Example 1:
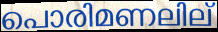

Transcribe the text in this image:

പൊരിമണലില്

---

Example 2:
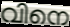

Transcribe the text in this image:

വിനെ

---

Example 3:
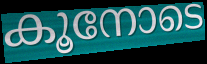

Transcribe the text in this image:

കൂനോടെ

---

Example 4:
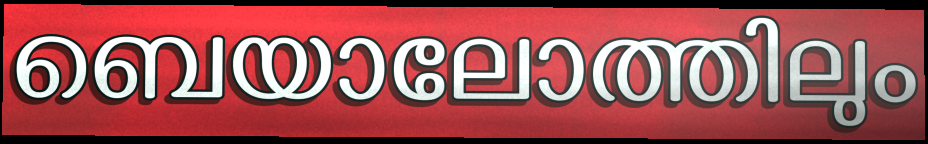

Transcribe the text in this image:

ബെയാലോത്തിലും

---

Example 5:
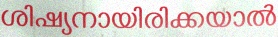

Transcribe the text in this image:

ശിഷ്യനായിരിക്കയാൽ